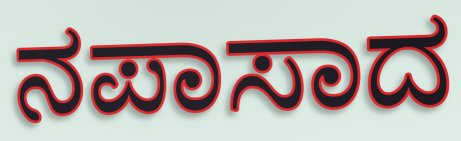
ನಪಾಸಾದ